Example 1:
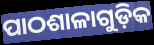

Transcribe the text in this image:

ପାଠଶାଳାଗୁଡ଼ିକ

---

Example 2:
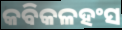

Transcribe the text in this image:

କବିକଳହଂସ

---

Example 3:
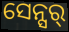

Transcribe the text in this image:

ସେନ୍ସର୍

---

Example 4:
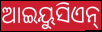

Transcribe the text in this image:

ଆଇୟୁସିଏନ୍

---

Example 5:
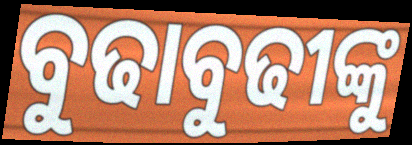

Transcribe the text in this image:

ବୁଢାବୁଢୀଙ୍କୁ